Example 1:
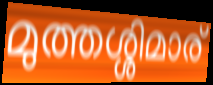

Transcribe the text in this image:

മുത്തശ്ശിമാര്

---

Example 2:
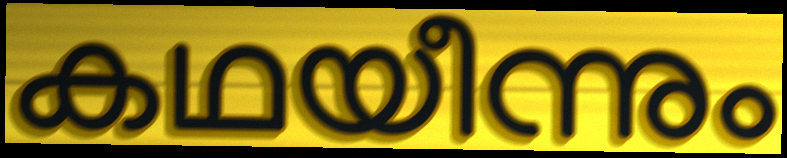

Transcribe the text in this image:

കഥയീന്നും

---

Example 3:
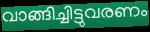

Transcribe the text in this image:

വാങ്ങിച്ചിട്ടുവരണം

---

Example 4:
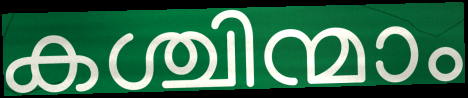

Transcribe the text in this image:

കശ്ചിന്മാം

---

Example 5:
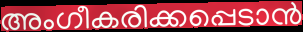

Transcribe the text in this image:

അംഗീകരിക്കപ്പെടാൻ